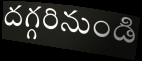
దగ్గరినుండి